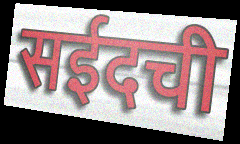
सईदची